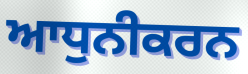
ਆਧੁਨੀਕਰਨ